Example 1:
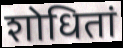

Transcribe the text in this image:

शोधितां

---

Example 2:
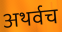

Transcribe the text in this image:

अथर्वच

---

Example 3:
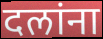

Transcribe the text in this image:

दलांना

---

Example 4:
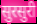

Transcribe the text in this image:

सुरसुरी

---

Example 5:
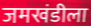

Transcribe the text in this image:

जमखंडीला